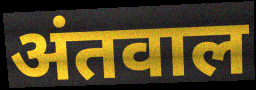
अंतवाल